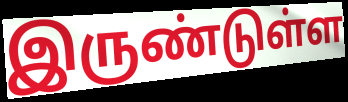
இருண்டுள்ள